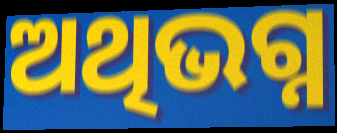
ଅଥିଭଗ୍ନ